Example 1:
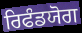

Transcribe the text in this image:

ਰਿਫੰਡਯੋਗ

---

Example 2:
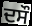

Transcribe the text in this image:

ਦਸੌ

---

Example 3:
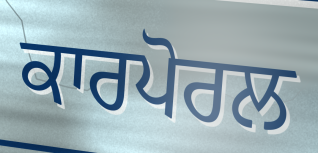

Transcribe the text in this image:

ਕਾਰਪੋਰਲ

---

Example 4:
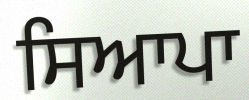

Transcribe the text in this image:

ਸਿਆਪਾ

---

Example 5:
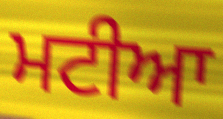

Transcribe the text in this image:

ਮਟੀਆ